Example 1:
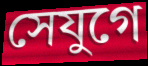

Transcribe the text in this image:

সেযুগে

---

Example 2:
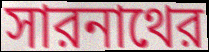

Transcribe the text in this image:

সারনাথের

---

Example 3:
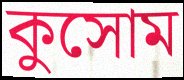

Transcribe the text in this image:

কুসোম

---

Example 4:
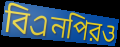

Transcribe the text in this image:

বিএনপিরও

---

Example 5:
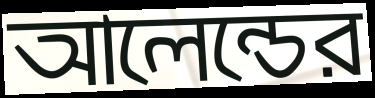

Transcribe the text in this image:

আলেন্ডের